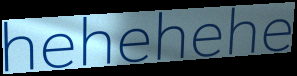
hehehehe